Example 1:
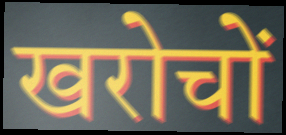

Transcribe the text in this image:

खरोचों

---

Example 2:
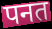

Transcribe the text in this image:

पनत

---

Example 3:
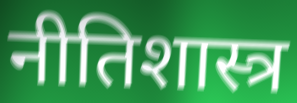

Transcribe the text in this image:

नीतिशास्त्र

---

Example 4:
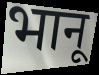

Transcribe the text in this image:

भानू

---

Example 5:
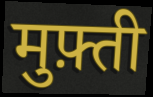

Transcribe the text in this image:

मुफ़्ती